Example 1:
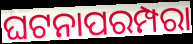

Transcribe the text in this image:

ଘଟନାପରମ୍ପରା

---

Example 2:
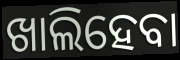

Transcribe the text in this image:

ଖାଲିହେବା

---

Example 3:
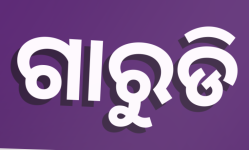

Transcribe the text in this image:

ଗାରୁଡି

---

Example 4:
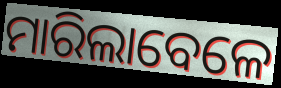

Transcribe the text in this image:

ମାରିଲାବେଳେ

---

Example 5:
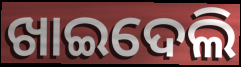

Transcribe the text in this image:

ଖାଇଦେଲି